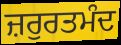
ਜ਼ਰੁਰਤਮੰਦ